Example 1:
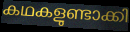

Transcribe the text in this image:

കഥകളുണ്ടാക്കി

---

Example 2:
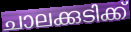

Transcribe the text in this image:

ചാലക്കുടിക്ക്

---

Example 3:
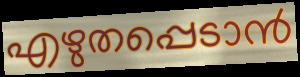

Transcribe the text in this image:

എഴുതപ്പെടാൻ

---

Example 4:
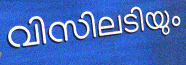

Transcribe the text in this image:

വിസിലടിയും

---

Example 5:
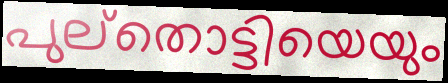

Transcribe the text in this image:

പുല്തൊട്ടിയെയും